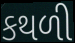
કથળી